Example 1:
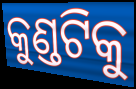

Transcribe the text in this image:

କୁଣ୍ଡଟିକୁ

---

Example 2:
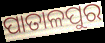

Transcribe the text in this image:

ପାତାଳପୁର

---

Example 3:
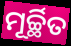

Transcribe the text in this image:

ମୂର୍ଚ୍ଛିତ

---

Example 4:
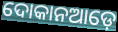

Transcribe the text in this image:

ଦୋକାନଆଡ଼େ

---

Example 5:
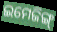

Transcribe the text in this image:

ଇମେଜିଙ୍ଗ୍